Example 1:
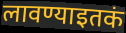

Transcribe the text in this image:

लावण्याइतकं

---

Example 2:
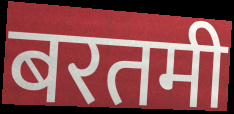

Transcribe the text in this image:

बरतमी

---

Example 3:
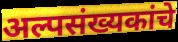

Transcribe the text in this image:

अल्पसंख्यकांचे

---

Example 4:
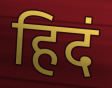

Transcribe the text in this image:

हिदं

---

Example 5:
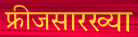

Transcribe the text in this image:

फ्रीजसारख्या